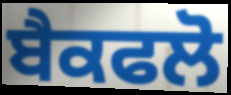
ਬੈਕਫਲੋ